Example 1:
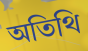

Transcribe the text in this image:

অতিথি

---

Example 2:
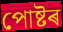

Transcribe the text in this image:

পোষ্টৰ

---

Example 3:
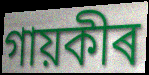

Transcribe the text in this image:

গায়কীৰ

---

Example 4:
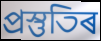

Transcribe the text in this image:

প্ৰস্তুতিৰ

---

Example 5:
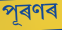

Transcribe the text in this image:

পূৰণৰ